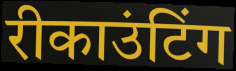
रीकाउंटिंग